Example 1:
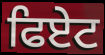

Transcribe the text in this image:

ਫਿਏਟ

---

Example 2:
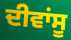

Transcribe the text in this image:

ਦੀਵਾਂਸੂ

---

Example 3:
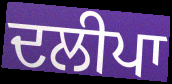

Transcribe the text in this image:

ਦਲੀਪਾ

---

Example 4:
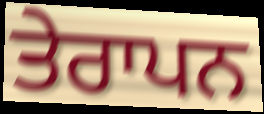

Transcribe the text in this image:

ਤੇਰਾਪਨ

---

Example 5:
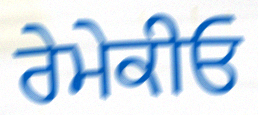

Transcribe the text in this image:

ਰੇਮੇਕੀਓ